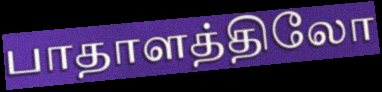
பாதாளத்திலோ